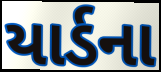
યાર્ડના